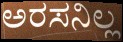
ಅರಸನಿಲ್ಲ